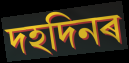
দহদিনৰ